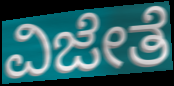
ವಿಜೇತೆ